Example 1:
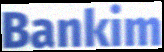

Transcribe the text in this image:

Bankim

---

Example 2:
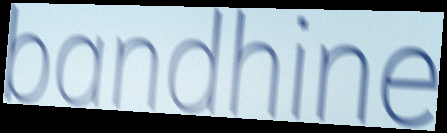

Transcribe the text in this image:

bandhine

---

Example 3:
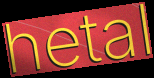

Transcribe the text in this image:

hetal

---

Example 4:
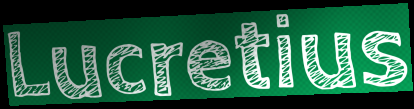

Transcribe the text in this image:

Lucretius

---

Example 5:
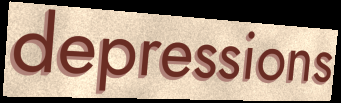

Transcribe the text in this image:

depressions